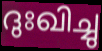
ദുഃഖിച്ചു